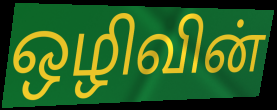
ஒழிவின்